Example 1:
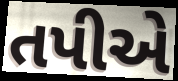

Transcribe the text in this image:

તપીએ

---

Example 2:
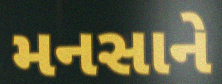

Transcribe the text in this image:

મનસાને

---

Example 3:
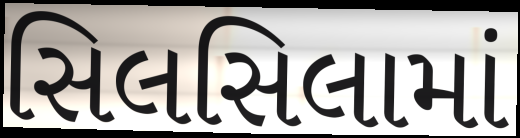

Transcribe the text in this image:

સિલસિલામાં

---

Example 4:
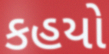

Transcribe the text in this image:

કહયો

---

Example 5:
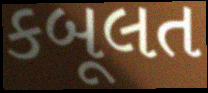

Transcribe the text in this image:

કબૂલત